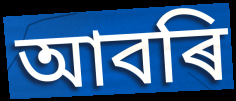
আবৰি